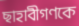
ছাহাবীগণকে